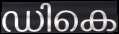
ഡികെ